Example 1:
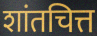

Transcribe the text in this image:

शांतचित्त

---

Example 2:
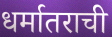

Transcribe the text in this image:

धर्मातराची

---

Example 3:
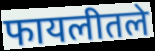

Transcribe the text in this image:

फायलीतले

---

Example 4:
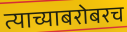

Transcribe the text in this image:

त्याच्याबरोबरच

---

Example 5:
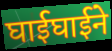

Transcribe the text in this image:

घाईघाईने